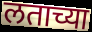
लताच्या